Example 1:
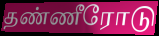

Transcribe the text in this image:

தண்ணீரோடு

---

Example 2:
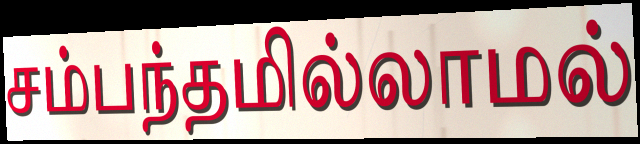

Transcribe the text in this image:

சம்பந்தமில்லாமல்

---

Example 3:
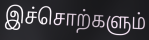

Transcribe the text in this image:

இச்சொற்களும்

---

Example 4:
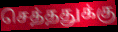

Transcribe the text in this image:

செத்ததுக்கு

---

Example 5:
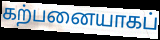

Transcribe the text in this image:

கற்பனையாகப்